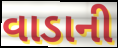
વાડાની